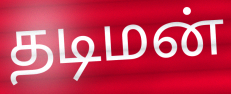
தடிமன்